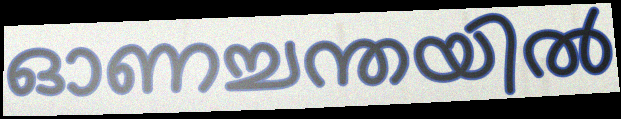
ഓണച്ചന്തയിൽ